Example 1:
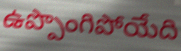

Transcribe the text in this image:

ఉప్పొంగిపోయేది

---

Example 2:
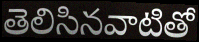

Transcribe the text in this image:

తెలిసినవాటితో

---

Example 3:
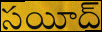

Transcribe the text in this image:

సయీద్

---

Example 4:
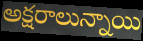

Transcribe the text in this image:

అక్షరాలున్నాయి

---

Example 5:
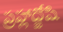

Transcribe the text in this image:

ప్రహ్లాద్జోషి